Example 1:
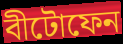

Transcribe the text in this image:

বীটোফেন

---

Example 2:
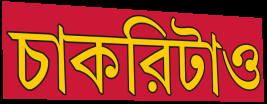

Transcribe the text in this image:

চাকরিটাও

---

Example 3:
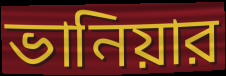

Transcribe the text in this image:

ভানিয়ার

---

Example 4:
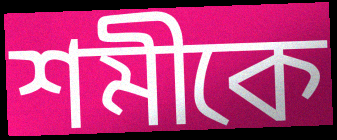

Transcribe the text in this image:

শমীকে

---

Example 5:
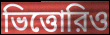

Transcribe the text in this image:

ভিত্তোরিও